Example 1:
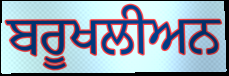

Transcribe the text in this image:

ਬਰੂਖਲੀਅਨ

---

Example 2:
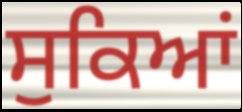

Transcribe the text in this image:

ਸੁਕਿਆਂ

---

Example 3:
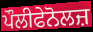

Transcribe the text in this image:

ਪੌਲੀਫੇਨੋਲਜ਼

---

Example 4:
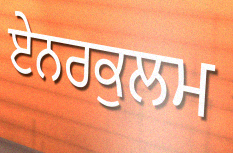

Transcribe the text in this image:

ਏਨਰਕੁਲਮ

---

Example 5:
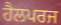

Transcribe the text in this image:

ਹੈਲਪਰਜ